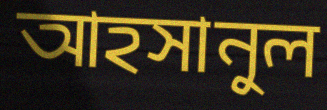
আহসানুল